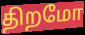
திறமோ